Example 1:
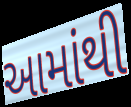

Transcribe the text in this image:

આમાંથી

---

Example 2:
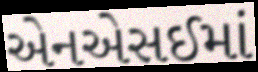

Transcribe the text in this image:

એનએસઈમાં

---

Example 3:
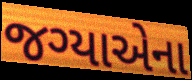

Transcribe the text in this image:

જગ્યાએના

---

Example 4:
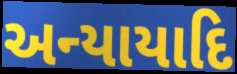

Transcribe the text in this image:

અન્યાયાદિ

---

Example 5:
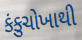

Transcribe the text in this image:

કંકુચોખાથી